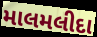
માલમલીદા